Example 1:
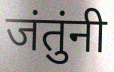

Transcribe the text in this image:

जंतुंनी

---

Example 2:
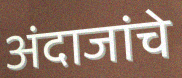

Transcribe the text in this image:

अंदाजांचे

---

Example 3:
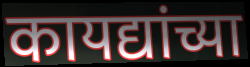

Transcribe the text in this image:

कायद्यांच्या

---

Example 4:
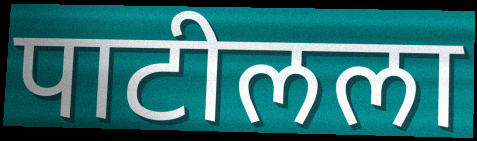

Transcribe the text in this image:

पाटीलला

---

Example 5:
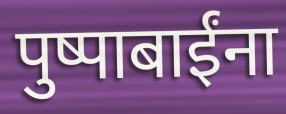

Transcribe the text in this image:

पुष्पाबाईंना